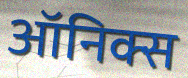
ऑनिक्स